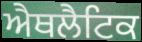
ਐਥਲੈਟਿਕ